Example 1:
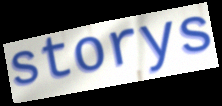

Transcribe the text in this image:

storys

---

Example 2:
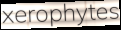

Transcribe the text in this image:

xerophytes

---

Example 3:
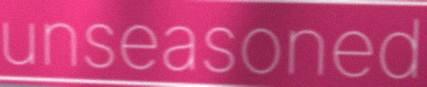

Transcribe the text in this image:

unseasoned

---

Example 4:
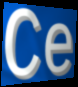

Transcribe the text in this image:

Ce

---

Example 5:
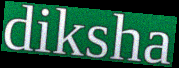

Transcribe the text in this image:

diksha